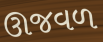
ઊજવળ